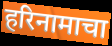
हरिनामाचा